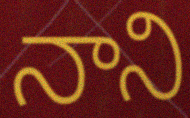
నాని